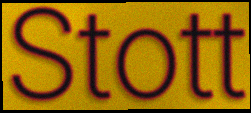
Stott